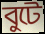
বুটে